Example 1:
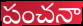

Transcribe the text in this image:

పంచనా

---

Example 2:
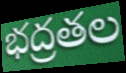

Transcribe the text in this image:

భద్రతల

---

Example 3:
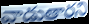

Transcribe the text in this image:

వాడుతారని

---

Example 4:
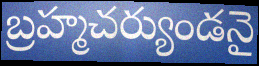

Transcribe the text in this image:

బ్రహ్మచర్యుండనై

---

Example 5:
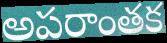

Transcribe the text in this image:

అపరాంతక